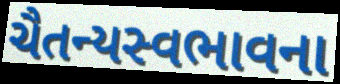
ચૈતન્યસ્વભાવના